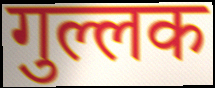
गुल्लक